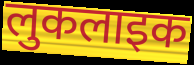
लुकलाइक